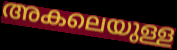
അകലെയുള്ള